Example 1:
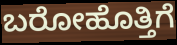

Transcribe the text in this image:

ಬರೋಹೊತ್ತಿಗೆ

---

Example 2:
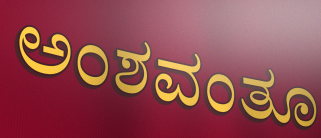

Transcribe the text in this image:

ಅಂಶವಂತೂ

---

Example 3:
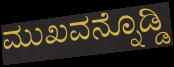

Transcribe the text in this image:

ಮುಖವನ್ನೊಡ್ಡಿ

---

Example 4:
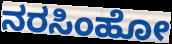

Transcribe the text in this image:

ನರಸಿಂಹೋ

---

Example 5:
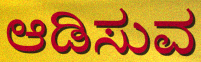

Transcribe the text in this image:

ಆಡಿಸುವ